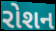
રોશન